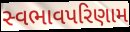
સ્વભાવપરિણામ